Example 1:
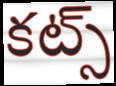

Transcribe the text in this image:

కట్స్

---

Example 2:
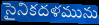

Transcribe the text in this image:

సైనికదళమును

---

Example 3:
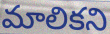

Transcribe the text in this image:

మాలికని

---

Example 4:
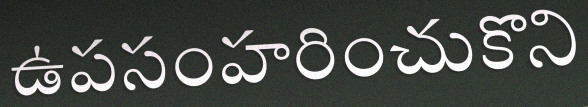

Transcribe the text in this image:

ఉపసంహరించుకొని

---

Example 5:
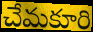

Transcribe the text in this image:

చేమకూరి